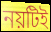
নয়টিই